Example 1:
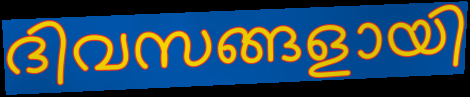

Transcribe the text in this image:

ദിവസങ്ങളായി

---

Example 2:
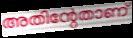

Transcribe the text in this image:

അതിന്റേതാണ്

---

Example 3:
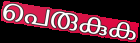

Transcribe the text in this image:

പെരുകുക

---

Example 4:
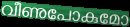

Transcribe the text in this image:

വീണുപോകുമോ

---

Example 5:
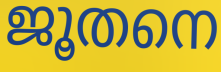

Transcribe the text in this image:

ജൂതനെ